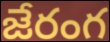
జేరంగ